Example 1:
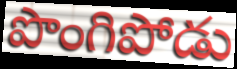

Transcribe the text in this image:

పొంగిపోడు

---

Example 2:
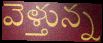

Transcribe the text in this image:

వెళ్తున్న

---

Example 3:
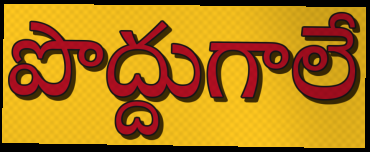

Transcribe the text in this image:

పొద్దుగాలే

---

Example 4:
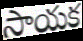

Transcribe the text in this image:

సాయక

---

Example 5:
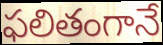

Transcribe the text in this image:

ఫలితంగానే